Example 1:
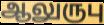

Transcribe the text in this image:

ஆலுருபு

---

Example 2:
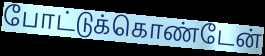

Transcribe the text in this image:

போட்டுக்கொண்டேன்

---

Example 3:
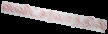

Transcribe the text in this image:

ஸ்விட்சர்லாந்தில்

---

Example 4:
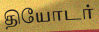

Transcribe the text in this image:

தியோடர்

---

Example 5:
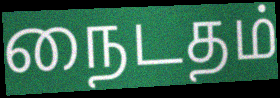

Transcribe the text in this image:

நைடதம்